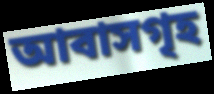
আবাসগৃহ